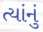
ત્યાંનું